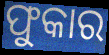
ଫୁକାର